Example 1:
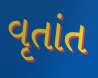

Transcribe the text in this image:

વૃતાંત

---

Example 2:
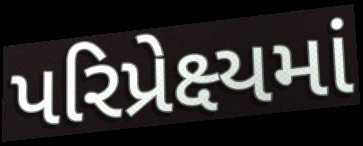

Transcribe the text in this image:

પરિપ્રેક્ષ્યમાં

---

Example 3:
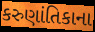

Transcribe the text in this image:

કરુણાંતિકાના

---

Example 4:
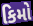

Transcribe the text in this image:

કિમો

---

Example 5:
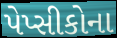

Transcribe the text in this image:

પેપ્સીકોના